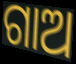
ଗାଅ